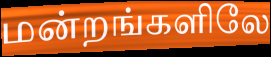
மன்றங்களிலே